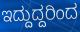
ಇದ್ದುದ್ದರಿಂದ